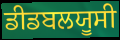
ਡੀਡਬਲਯੂਸੀ